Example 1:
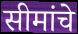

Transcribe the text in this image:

सीमांचे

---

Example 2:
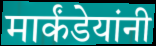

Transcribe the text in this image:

मार्कंडेयांनी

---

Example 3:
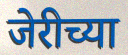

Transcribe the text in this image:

जेरीच्या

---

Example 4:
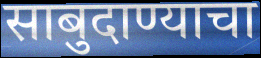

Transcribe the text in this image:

साबुदाण्याचा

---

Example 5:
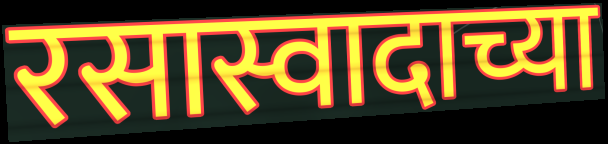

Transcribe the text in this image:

रसास्वादाच्या